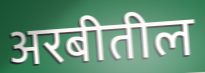
अरबीतील